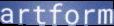
artform